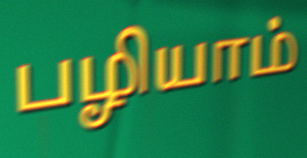
பழியாம்